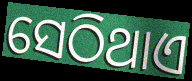
ସେଠିଥାଏ